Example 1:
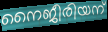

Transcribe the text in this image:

നൈജീരിയന്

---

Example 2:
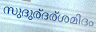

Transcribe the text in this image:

സുദുര്ദര്ശമിദം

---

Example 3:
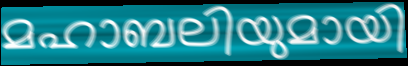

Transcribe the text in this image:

മഹാബലിയുമായി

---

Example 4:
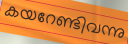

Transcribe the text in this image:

കയറേണ്ടിവന്നു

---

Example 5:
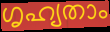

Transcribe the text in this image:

ഗൃഹ്യതാം